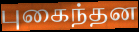
புகைந்தன